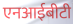
एनआईबीटी